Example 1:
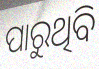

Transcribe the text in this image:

ପାରୁଥିବି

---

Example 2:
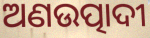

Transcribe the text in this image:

ଅଣଉତ୍ପାଦୀ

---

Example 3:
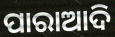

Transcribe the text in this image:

ପାରାଆଦି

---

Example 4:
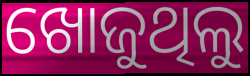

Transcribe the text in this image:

ଖୋଜୁଥିଲୁ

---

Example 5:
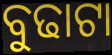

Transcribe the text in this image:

ବୁଢାଟା